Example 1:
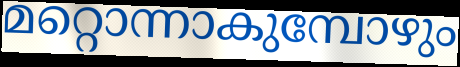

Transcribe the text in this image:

മറ്റൊന്നാകുമ്പോഴും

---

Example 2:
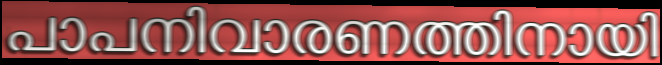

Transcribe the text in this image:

പാപനിവാരണത്തിനായി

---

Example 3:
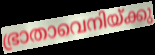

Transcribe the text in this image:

ഭ്രാതാവെനിയ്ക്കു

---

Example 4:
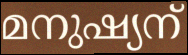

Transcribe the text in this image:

മനുഷ്യന്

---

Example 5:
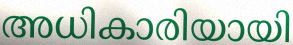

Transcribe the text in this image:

അധികാരിയായി